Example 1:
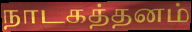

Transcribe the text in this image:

நாடகத்தனம்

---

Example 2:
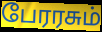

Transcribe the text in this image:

பேரரசும்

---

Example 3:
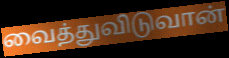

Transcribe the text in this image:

வைத்துவிடுவான்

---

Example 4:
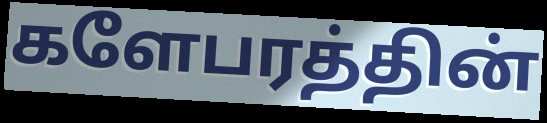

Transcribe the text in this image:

களேபரத்தின்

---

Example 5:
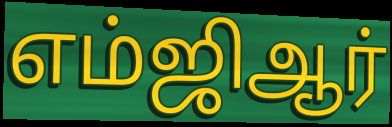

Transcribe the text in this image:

எம்ஜிஆர்